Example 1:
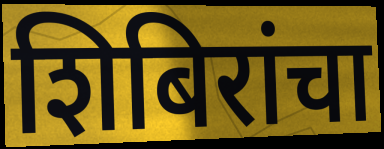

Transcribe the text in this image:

शिबिरांचा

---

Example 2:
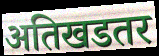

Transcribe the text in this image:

अतिखडतर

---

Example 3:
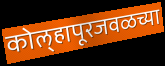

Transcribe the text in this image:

कोल्हापूरजवळच्या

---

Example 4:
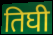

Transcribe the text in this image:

तिघी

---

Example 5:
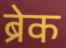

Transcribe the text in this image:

ब्रेक